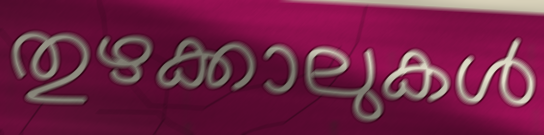
തുഴക്കാലുകൾ